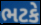
ભટકે